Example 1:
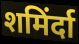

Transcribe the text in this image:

शमिंर्दा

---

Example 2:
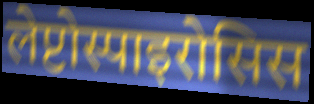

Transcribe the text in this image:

लेप्टोस्पाइरोसिस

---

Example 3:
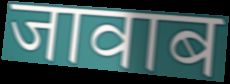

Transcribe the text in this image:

जावाब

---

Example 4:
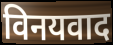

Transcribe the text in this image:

विनयवाद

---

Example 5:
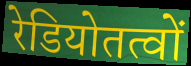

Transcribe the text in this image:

रेडियोतत्वों